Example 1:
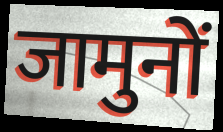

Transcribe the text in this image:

जामुनों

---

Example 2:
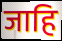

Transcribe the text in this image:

जाहि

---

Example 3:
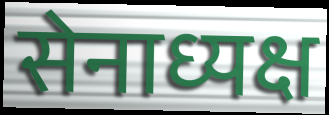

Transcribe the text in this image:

सेनाध्यक्ष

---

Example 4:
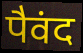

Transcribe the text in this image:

पैवंद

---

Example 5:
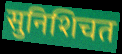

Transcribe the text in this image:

सुनिशिचत